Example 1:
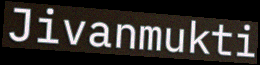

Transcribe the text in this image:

Jivanmukti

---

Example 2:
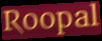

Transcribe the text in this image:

Roopal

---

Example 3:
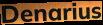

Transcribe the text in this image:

Denarius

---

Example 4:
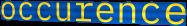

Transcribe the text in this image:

occurence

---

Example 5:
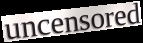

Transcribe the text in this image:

uncensored